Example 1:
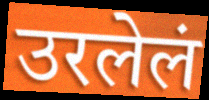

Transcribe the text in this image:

उरलेलं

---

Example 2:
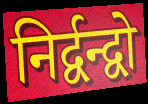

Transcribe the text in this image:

निर्द्वन्द्वो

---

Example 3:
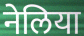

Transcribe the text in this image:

नेलिया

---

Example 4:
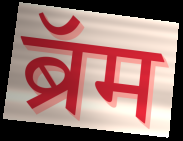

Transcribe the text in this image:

ब्रॅम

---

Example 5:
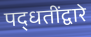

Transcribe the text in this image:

पद्धतींद्वारे